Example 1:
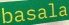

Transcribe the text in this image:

basala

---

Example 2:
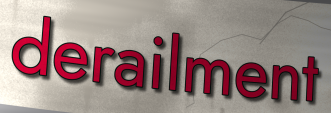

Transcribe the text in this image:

derailment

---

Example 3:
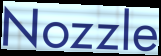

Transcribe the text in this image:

Nozzle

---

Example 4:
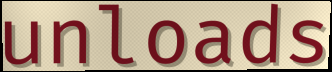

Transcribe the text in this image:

unloads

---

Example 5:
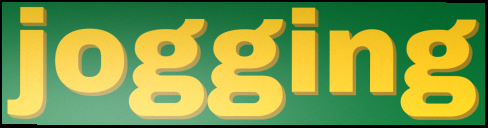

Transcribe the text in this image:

jogging